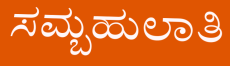
ಸಮ್ಬಹುಲಾತಿ